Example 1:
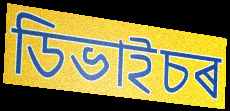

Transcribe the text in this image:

ডিভাইচৰ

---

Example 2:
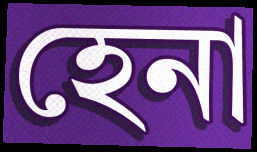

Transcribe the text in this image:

হেনা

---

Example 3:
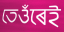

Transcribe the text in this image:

তেওঁৰেই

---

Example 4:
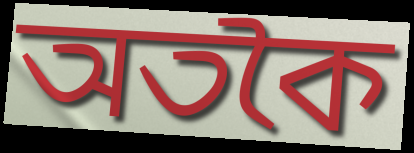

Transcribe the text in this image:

অতকৈ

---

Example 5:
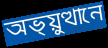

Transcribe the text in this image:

অভ্য়ুত্থানে